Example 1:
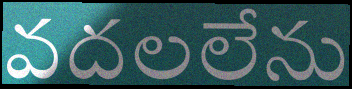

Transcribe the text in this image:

వదలలేను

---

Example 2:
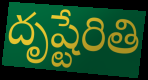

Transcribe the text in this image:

దృష్టేరితి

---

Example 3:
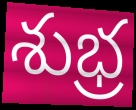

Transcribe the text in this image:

శుభ్ర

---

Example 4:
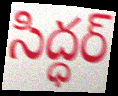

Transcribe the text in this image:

సిద్ధర్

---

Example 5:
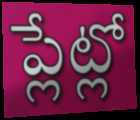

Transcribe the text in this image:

ప్లేట్లో